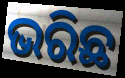
ଭରିଛ